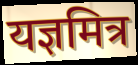
यज्ञमित्र